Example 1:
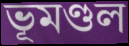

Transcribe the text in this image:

ভূমণ্ডল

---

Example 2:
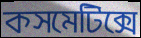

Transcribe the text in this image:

কসমেটিক্সে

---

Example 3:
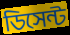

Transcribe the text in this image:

ডিসেন্ট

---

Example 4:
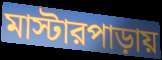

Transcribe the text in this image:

মাস্টারপাড়ায়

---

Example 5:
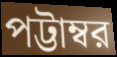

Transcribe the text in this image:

পট্টাম্বর